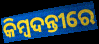
କିମ୍ବଦନ୍ତୀରେ